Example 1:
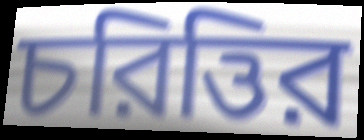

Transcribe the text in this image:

চরিত্তির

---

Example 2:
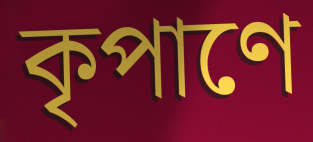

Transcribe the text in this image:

কৃপাণে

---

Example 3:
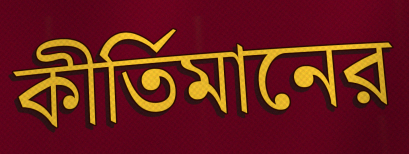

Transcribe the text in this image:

কীর্তিমানের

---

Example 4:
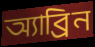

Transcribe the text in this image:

অ্যাব্রিন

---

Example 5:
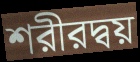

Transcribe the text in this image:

শরীরদ্বয়